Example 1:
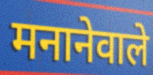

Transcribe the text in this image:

मनानेवाले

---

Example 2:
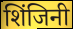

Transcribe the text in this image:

शिंजिनी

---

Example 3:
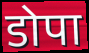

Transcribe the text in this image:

डोपा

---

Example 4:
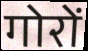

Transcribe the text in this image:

गोरों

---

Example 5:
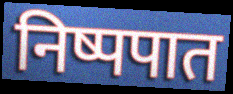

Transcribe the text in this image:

निष्पपात